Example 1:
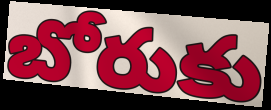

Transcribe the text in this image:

బోరుకు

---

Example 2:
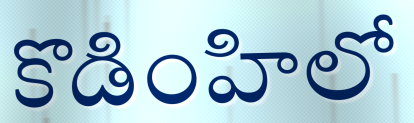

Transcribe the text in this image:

కొడింహిలో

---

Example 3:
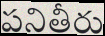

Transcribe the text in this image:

పనితీరు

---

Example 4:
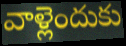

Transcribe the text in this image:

వాళ్లెందుకు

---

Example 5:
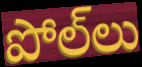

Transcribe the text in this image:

పోల్‌లు